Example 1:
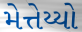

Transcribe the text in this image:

મેત્તેય્યો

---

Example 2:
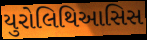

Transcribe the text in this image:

યુરોલિથિઆસિસ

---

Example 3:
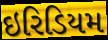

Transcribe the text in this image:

ઇરિડિયમ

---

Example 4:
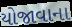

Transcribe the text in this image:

યોજાવાના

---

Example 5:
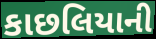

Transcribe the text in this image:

કાછલિયાની